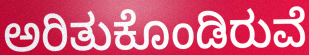
ಅರಿತುಕೊಂಡಿರುವೆ